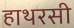
हाथरसी